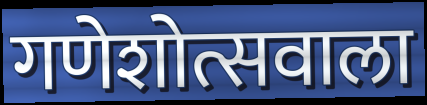
गणेशोत्सवाला